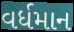
વર્ધમાન